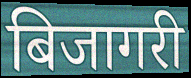
बिजागरी